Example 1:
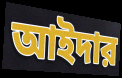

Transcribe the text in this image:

আইদার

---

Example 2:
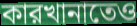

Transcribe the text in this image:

কারখানাতেও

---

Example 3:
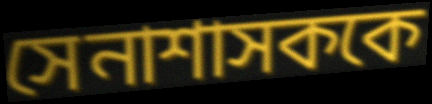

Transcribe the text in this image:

সেনাশাসককে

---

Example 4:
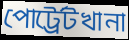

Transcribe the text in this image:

পোর্ট্রেটখানা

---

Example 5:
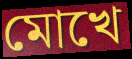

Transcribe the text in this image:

মোখে